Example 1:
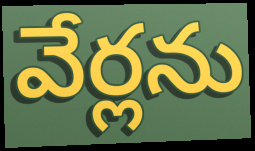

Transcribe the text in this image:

వేర్లను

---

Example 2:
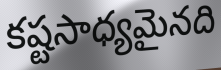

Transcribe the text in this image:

కష్టసాధ్యమైనది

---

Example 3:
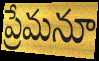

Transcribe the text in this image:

ప్రేమనూ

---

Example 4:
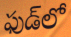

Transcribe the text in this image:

ఫుడ్‌లో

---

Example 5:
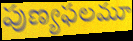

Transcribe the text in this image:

పుణ్యఫలమూ